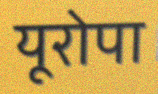
यूरोपा